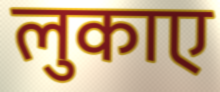
लुकाए